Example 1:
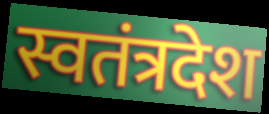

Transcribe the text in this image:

स्वतंत्रदेश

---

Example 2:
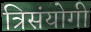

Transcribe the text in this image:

त्रिसंयोगी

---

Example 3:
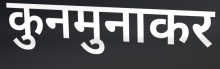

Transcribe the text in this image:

कुनमुनाकर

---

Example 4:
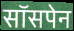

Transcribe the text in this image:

सॉसपेन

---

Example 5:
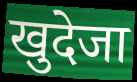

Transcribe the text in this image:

खुदेजा